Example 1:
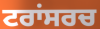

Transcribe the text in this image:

ਟਰਾਂਸਰਚ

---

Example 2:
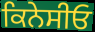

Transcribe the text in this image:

ਕਿਨੇਸੀਓ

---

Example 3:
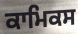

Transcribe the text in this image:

ਕਾਮਿਕਸ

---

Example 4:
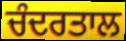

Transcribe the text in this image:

ਚੰਦਰਤਾਲ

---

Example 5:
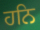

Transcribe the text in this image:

ਹਨਿ